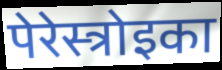
पेरेस्त्रोइका